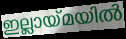
ഇല്ലായ്മയിൽ